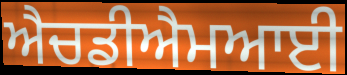
ਐਚਡੀਐਮਆਈ